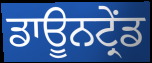
ਡਾਊਨਟ੍ਰੇਂਡ